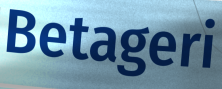
Betageri